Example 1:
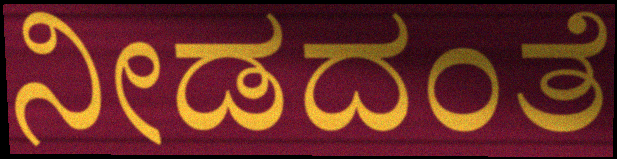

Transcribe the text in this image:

ನೀಡದಂತೆ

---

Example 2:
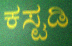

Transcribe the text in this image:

ಕಸ್ಟಡಿ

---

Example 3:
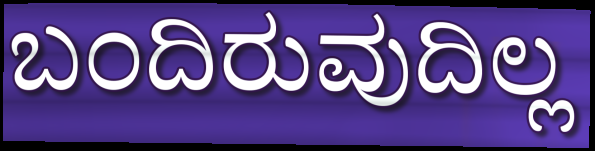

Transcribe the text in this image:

ಬಂದಿರುವುದಿಲ್ಲ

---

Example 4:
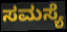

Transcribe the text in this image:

ಸಮಸ್ಯೆ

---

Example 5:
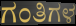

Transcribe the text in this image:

ಗಂತಿಗಳ